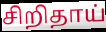
சிறிதாய்